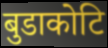
बुडाकोटि